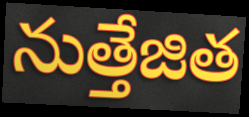
నుత్తేజిత